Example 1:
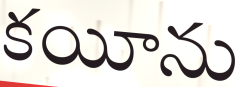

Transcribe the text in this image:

కయీను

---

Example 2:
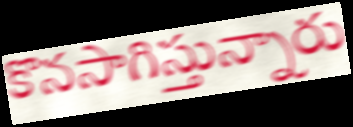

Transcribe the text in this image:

కొనసాగిస్తున్నారు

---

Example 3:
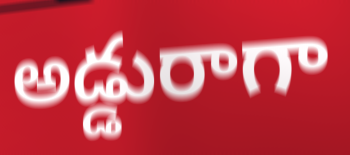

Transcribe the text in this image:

అడ్డురాగా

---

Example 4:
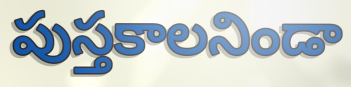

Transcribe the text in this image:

పుస్తకాలనిండా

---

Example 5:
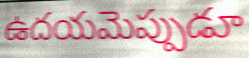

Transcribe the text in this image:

ఉదయమెప్పుడూ